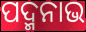
ପଦ୍ମନାଭ